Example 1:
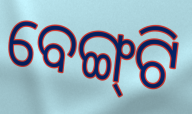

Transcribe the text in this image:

ବେଙ୍ଗ୍‌ଟି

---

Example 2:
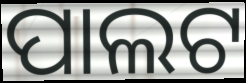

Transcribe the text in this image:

ପାଲଟ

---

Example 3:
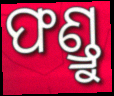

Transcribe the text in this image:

ଫଣ୍ଡ୍ରୁ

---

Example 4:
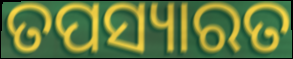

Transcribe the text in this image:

ତପସ୍ୟାରତ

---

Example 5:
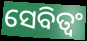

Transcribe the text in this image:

ସେବିତ୍ୱଂ